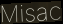
Misac